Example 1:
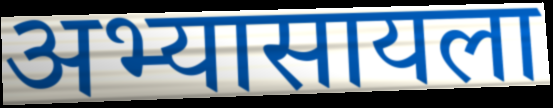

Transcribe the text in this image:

अभ्यासायला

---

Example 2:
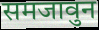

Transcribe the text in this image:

समजावुन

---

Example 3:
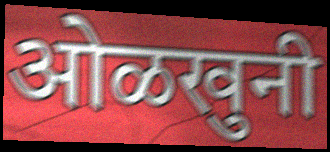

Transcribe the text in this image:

ओळखुनी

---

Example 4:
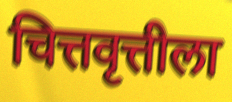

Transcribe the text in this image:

चित्तवृत्तीला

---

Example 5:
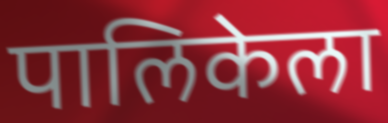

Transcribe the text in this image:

पालिकेला